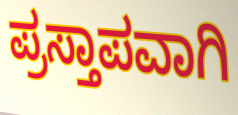
ಪ್ರಸ್ತಾಪವಾಗಿ